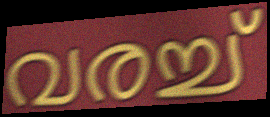
വരച്ച്